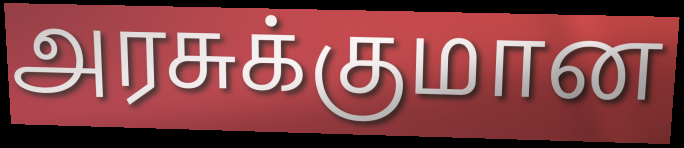
அரசுக்குமான